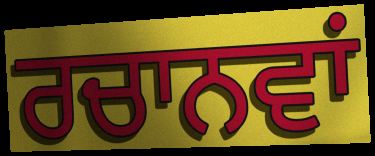
ਰਚਾਨਵਾਂ